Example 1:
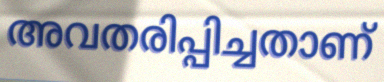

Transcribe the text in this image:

അവതരിപ്പിച്ചതാണ്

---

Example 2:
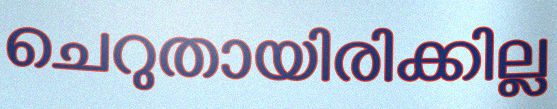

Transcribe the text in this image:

ചെറുതായിരിക്കില്ല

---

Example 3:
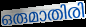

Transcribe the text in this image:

ഒരുമാതിരി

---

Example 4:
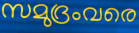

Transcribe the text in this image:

സമുദ്രംവരെ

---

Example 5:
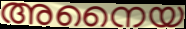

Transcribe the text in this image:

അനൈയ